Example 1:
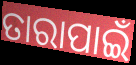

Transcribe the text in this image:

ତାରାପାଇଁ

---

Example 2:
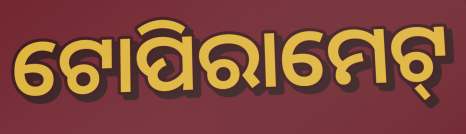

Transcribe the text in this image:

ଟୋପିରାମେଟ୍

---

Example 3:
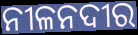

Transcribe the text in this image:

ନୀଳନଦୀର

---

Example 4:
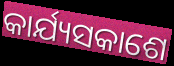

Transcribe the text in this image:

କାର୍ଯ୍ୟସକାଶେ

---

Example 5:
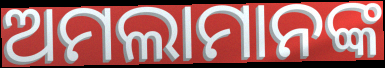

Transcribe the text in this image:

ଅମଲାମାନଙ୍କ